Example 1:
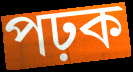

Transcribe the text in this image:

পঢ়ক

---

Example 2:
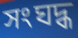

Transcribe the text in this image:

সংঘদ্ধ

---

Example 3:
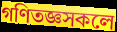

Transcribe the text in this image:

গণিতজ্ঞসকলে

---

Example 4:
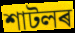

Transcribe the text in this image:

শাটলৰ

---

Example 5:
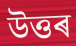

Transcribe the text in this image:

উত্তৰ